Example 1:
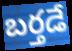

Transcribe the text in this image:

బర్తడే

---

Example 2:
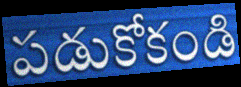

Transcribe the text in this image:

పడుకోకండి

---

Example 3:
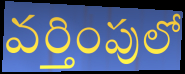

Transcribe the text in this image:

వర్తింపులో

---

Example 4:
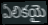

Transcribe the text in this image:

ఏలికయై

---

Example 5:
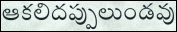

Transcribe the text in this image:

ఆకలిదప్పులుండవు